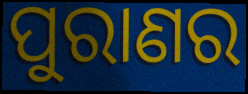
ପୁରାଣର